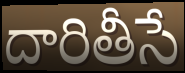
దారితీసే